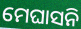
ମେଘାସନି